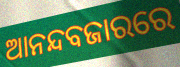
ଆନନ୍ଦବଜାରରେ